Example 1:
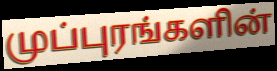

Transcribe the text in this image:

முப்புரங்களின்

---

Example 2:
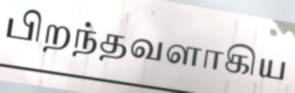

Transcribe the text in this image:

பிறந்தவளாகிய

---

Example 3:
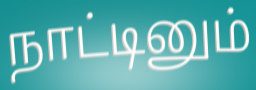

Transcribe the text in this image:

நாட்டினும்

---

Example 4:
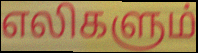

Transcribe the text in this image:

எலிகளும்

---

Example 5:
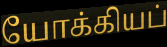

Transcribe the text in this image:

யோக்கியப்